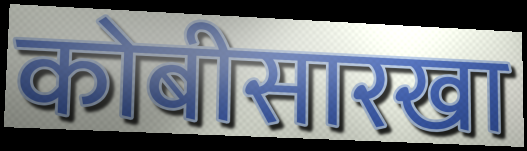
कोबीसारखा